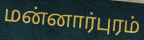
மன்னார்புரம்